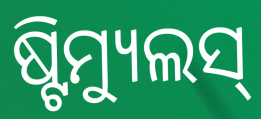
ଷ୍ଟିମ୍ୟୁଲସ୍